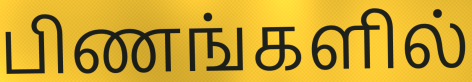
பிணங்களில்